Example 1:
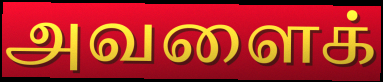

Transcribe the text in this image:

அவளைக்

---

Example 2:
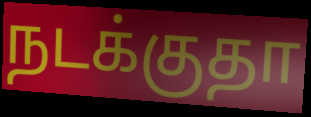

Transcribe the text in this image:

நடக்குதா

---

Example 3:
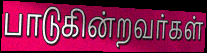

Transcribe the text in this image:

பாடுகின்றவர்கள்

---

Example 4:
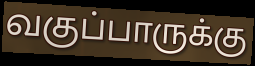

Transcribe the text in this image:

வகுப்பாருக்கு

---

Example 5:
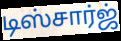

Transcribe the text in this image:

டிஸ்சார்ஜ்